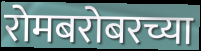
रोमबरोबरच्या